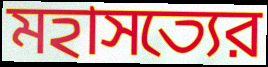
মহাসত্যের